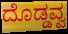
ದೊಡ್ಡವ್ವ